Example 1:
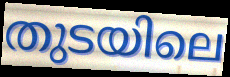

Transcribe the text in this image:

തുടയിലെ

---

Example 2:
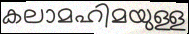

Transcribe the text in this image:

കലാമഹിമയുള്ള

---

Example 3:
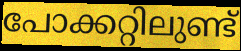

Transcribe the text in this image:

പോക്കറ്റിലുണ്ട്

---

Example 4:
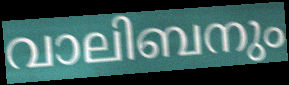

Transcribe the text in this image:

വാലിബനും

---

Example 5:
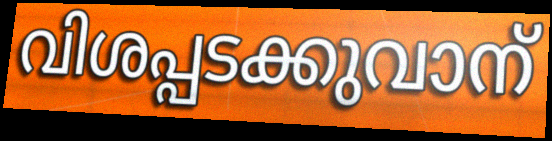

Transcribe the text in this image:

വിശപ്പടക്കുവാന്